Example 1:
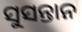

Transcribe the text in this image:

ସୁସନ୍ତାନ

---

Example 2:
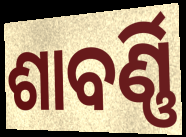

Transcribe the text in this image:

ଶାବର୍ଣ୍ଣି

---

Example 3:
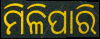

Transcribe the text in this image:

ମିଳିପାରି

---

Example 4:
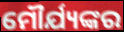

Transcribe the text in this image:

ମୌର୍ଯ୍ୟଙ୍କର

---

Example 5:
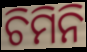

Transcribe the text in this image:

ଚିମିନି